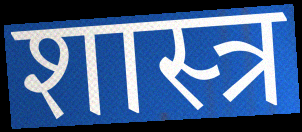
शास्त्र